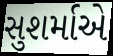
સુશર્માએ